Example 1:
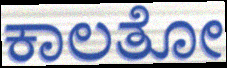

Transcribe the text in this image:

ಕಾಲತೋ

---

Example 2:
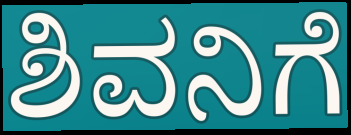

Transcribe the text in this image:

ಶಿವನಿಗೆ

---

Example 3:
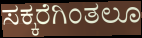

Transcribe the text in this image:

ಸಕ್ಕರೆಗಿಂತಲೂ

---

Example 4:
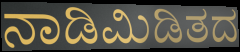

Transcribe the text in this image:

ನಾಡಿಮಿಡಿತದ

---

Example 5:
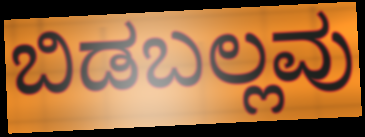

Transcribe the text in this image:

ಬಿಡಬಲ್ಲವು